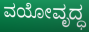
ವಯೋವೃದ್ಧ